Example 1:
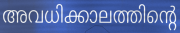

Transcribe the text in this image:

അവധിക്കാലത്തിന്റെ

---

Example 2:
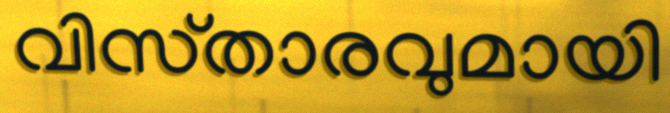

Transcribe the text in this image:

വിസ്‌താരവുമായി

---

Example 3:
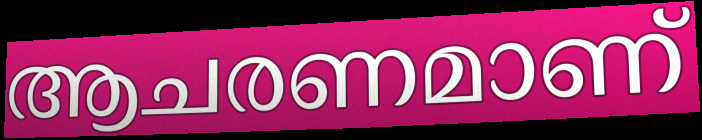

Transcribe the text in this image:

ആചരണമാണ്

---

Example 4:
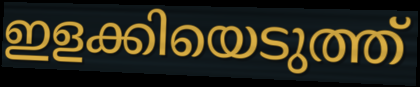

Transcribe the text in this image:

ഇളക്കിയെടുത്ത്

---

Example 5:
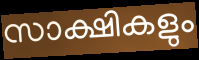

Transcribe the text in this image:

സാക്ഷികളും